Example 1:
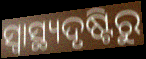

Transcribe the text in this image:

ସ୍ୱାସ୍ଥ୍ୟଦୃଷ୍ଟିରୁ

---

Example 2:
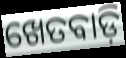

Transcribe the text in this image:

ଖେତବାଡ଼ି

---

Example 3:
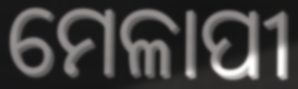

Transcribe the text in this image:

ମେଳାପୀ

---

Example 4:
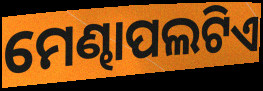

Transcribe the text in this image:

ମେଣ୍ଢାପଲଟିଏ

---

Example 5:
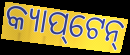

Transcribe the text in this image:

କ୍ୟାପ୍‌ଟେନ୍